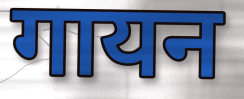
गायन